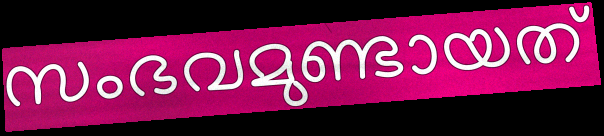
സംഭവമുണ്ടായത്